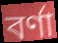
বর্ণা